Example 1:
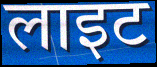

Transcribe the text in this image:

लाइट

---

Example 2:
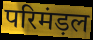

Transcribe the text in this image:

परिमंड़ल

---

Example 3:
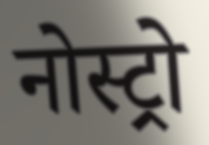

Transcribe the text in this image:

नोस्ट्रो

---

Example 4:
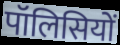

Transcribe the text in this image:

पॉलिसियों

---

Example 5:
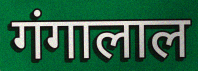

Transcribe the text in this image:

गंगालाल